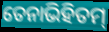
ତେନାଭିହିତମ୍